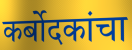
कर्बोदकांचा